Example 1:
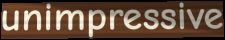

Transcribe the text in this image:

unimpressive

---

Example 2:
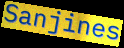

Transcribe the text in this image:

Sanjines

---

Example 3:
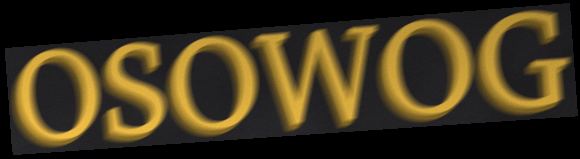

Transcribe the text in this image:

OSOWOG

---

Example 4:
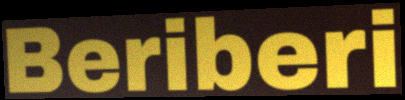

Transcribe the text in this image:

Beriberi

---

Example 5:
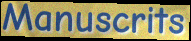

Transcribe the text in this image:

Manuscrits